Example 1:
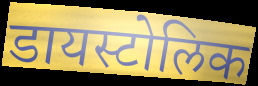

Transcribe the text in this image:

डायस्टोलिक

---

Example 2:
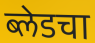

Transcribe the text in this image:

ब्लेडचा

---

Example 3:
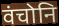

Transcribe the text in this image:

वंचोनि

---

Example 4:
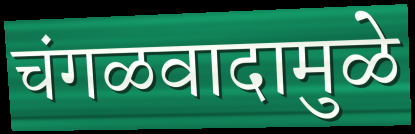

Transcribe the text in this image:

चंगळवादामुळे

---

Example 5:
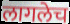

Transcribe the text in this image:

लागलेच